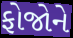
ફોજોને